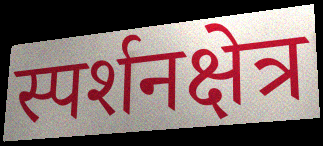
स्पर्शनक्षेत्र